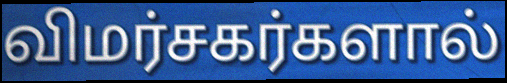
விமர்சகர்களால்